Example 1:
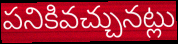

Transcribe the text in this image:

పనికివచ్చునట్లు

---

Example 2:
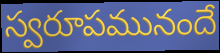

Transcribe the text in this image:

స్వరూపమునందే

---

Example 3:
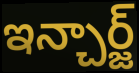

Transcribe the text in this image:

ఇన్చార్జ్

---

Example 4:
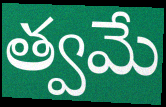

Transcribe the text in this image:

త్వమే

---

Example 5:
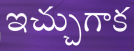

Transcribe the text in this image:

ఇచ్చుగాక